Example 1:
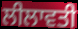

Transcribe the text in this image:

ਲੀਲਾਵਤੀ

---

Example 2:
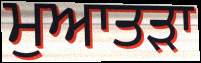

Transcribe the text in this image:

ਮੁਆਤੜਾ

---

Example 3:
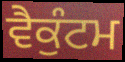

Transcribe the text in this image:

ਵੈਕੁੰਟਮ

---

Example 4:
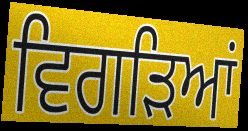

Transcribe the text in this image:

ਵਿਗੜਿਆਂ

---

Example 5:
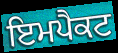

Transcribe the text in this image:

ਇਮਪੈਕਟ